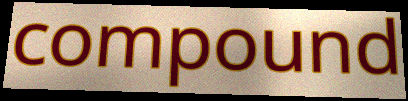
compound